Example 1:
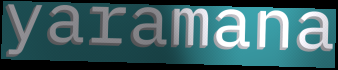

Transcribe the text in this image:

yaramana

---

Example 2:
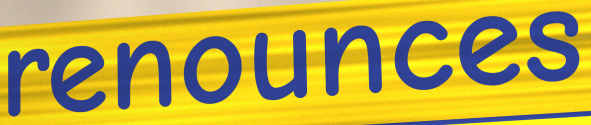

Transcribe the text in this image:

renounces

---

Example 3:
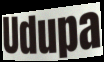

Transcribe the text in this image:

Udupa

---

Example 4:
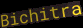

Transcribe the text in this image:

Bichitra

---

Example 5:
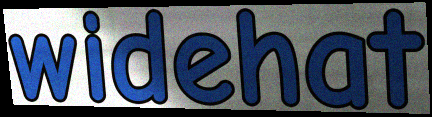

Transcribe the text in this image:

widehat